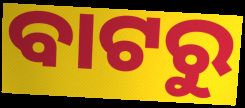
ବାଟରୁ